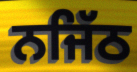
ਨਜਿੱਠ